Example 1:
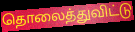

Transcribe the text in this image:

தொலைத்துவிட்டு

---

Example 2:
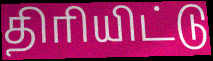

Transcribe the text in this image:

திரியிட்டு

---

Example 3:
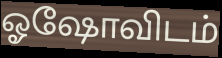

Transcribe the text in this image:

ஓஷோவிடம்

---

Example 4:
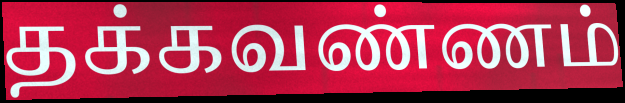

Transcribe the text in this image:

தக்கவண்ணம்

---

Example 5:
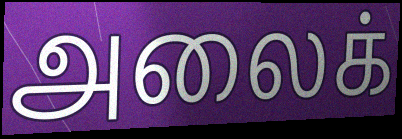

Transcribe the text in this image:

அலைக்